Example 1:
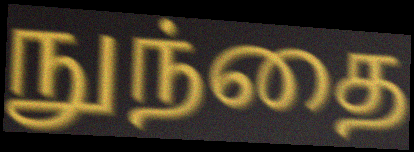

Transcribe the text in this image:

நுந்தை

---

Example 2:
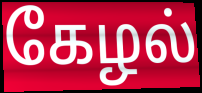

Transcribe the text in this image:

கேழல்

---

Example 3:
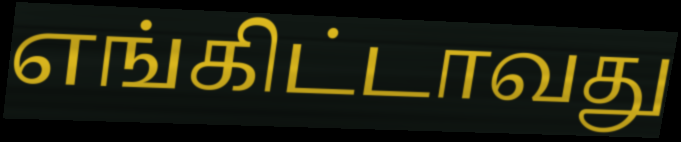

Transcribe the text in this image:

எங்கிட்டாவது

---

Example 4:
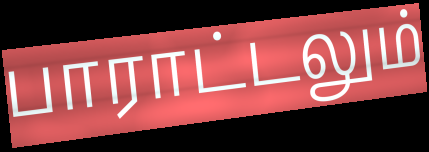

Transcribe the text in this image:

பாராட்டலும்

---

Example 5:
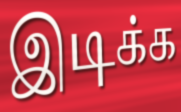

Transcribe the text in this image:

இடிக்க